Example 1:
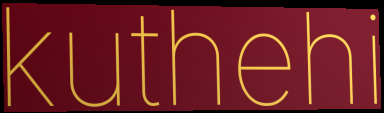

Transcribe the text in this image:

kuthehi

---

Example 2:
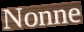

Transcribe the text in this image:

Nonne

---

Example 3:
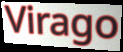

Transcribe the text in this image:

Virago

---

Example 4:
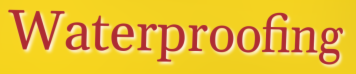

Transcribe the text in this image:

Waterproofing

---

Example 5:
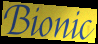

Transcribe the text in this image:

Bionic